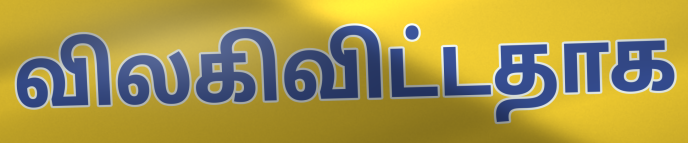
விலகிவிட்டதாக